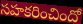
సహకరించిందో